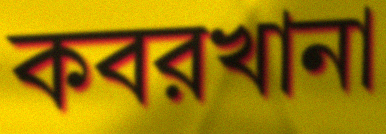
কবরখানা